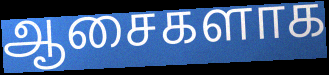
ஆசைகளாக